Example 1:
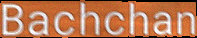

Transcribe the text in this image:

Bachchan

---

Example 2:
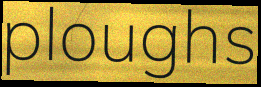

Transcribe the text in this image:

ploughs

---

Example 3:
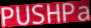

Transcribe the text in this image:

PUSHPa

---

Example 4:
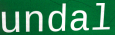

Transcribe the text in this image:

undal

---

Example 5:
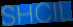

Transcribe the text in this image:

SHCIL